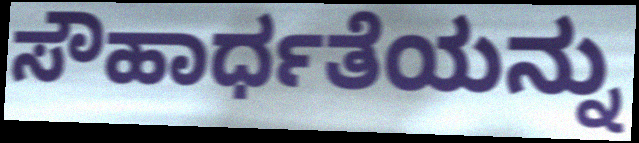
ಸೌಹಾರ್ಧತೆಯನ್ನು